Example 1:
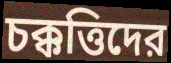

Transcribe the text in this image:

চক্কত্তিদের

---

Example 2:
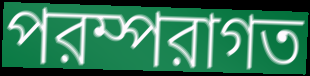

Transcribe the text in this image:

পরম্পরাগত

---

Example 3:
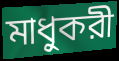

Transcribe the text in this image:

মাধুকরী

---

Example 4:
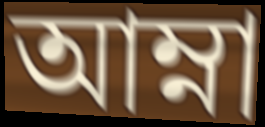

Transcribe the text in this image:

আম্না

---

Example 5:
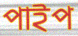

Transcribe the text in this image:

পাইপ